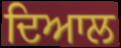
ਦਿਆਲ